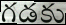
గడకు